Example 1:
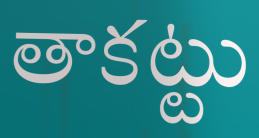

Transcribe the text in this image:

తాకట్టు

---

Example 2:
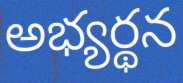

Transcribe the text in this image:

అభ్యర్థన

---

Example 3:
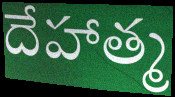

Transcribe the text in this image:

దేహాత్మ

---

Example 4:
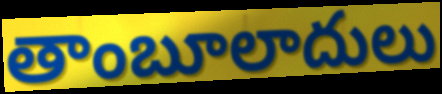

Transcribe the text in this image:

తాంబూలాదులు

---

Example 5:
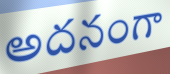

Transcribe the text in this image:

అదనంగా